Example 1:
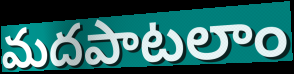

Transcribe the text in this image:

మదపాటలాం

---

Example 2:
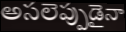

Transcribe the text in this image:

అసలెప్పుడైనా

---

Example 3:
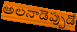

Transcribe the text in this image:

అలనాడెప్పుడో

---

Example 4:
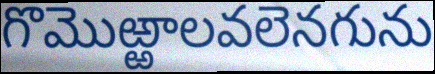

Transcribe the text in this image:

గొమొఱ్ఱాలవలెనగును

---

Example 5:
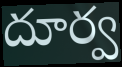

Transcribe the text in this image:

దూర్వ